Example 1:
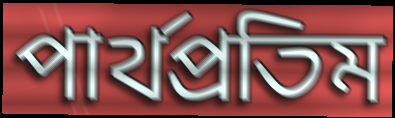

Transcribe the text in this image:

পার্থপ্রতিম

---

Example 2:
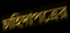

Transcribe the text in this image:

চাহিদাপত্রের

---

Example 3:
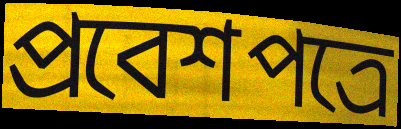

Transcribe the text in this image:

প্রবেশপত্রে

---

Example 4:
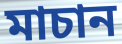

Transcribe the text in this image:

মাচান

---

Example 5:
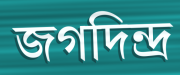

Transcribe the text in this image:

জগদিন্দ্র